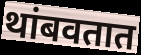
थांबवतात